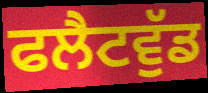
ਫਲੈਟਵੁੱਡ